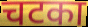
चटका